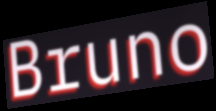
Bruno